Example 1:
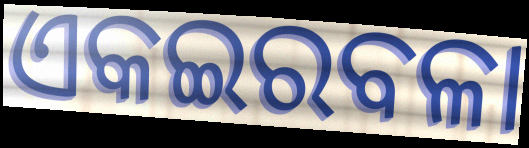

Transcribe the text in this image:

ଏକଇରବଳା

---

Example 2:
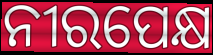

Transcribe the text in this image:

ନୀରପେକ୍ଷ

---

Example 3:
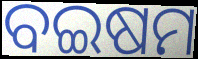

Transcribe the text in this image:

ବଇଷମ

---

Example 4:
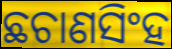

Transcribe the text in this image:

ଛଚାଣସିଂହ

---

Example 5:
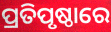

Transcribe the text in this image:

ପ୍ରତିପୃଷ୍ଠାରେ